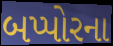
બપ્પોરના